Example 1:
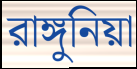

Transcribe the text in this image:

রাঙ্গুনিয়া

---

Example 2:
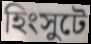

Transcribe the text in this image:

হিংসুটে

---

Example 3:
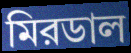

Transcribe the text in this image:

মিরডাল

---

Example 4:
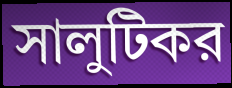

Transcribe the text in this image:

সালুটিকর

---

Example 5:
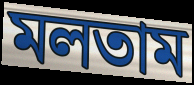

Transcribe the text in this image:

মলতাম